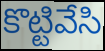
కొట్టివేసి